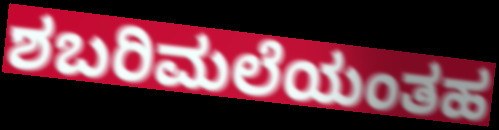
ಶಬರಿಮಲೆಯಂತಹ